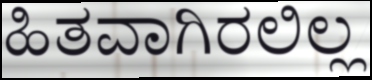
ಹಿತವಾಗಿರಲಿಲ್ಲ